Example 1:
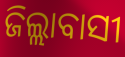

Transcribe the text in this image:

ଜିଲ୍ଲାବାସୀ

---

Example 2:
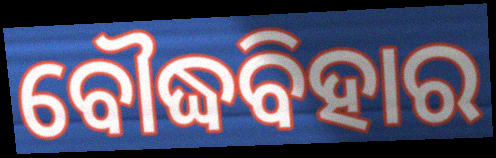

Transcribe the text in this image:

ବୌଦ୍ଧବିହାର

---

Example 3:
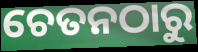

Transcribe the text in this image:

ଚେତନଠାରୁ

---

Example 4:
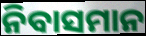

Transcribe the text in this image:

ନିବାସମାନ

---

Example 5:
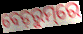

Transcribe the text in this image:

ବେଡ଼ରୁମ୍‌ରେ